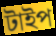
টাইপ